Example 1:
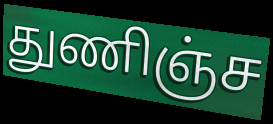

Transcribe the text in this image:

துணிஞ்ச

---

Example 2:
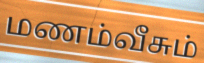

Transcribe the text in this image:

மணம்வீசும்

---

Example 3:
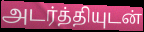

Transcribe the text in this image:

அடர்த்தியுடன்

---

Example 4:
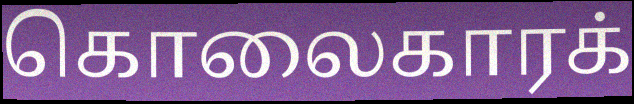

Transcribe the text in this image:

கொலைகாரக்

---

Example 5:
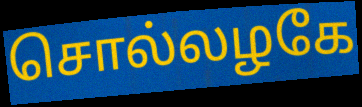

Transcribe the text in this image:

சொல்லழகே